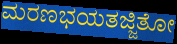
ಮರಣಭಯತಜ್ಜಿತೋ